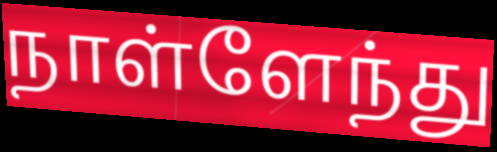
நாள்ளேந்து